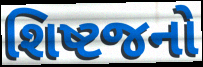
શિષ્ટજનો